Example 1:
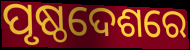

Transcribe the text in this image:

ପୃଷ୍ଠଦେଶରେ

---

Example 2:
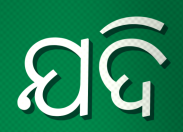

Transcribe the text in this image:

ଯଦି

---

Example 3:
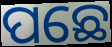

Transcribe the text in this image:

ପଛେ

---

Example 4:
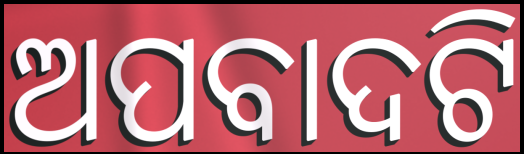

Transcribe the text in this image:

ଅପବାଦଟି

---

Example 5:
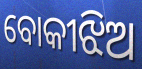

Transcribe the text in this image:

ବୋକୀଝିଅ